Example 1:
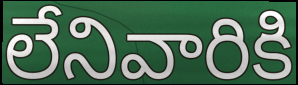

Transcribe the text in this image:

లేనివారికి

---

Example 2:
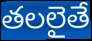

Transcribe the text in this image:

తలలైతే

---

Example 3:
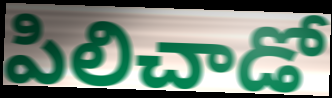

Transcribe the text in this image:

పిలిచాడో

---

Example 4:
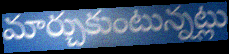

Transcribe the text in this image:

మార్చుకుంటున్నట్లు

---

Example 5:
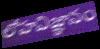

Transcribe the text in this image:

లోహవిజ్ఞానం